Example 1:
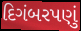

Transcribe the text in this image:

દિગંબરપણું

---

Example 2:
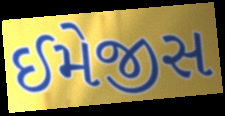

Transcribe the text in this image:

ઈમેજીસ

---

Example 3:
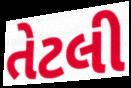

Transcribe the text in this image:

તેટલી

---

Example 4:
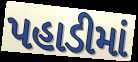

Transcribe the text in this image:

પહાડીમાં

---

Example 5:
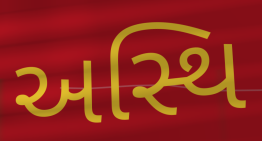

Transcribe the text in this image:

અસ્થિ